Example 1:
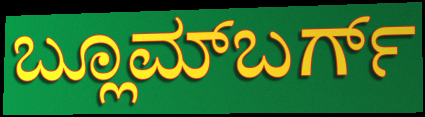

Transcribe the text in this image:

ಬ್ಲೂಮ್‌ಬರ್ಗ್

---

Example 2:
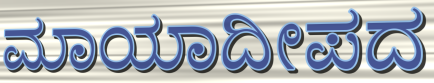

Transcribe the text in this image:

ಮಾಯಾದೀಪದ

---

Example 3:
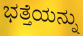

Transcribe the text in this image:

ಭತ್ತೆಯನ್ನು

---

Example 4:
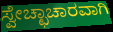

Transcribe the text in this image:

ಸ್ವೇಚ್ಛಾಚಾರವಾಗಿ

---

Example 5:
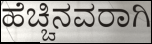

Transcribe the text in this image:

ಹೆಚ್ಚಿನವರಾಗಿ